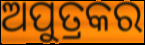
ଅପୁତ୍ରକର